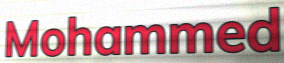
Mohammed